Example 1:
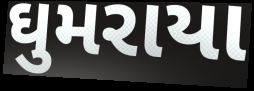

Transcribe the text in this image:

ઘુમરાયા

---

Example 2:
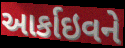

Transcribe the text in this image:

આર્કાઇવને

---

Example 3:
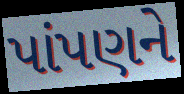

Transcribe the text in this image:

પાંપણને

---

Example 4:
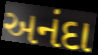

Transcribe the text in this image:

અનંદા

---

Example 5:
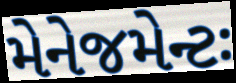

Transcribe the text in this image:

મેનેજમેન્ટઃ